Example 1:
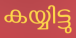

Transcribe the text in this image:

കയ്യിട്ടു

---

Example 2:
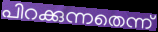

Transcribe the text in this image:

പിറക്കുന്നതെന്ന്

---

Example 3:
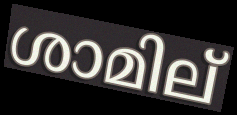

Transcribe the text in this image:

ശാമില്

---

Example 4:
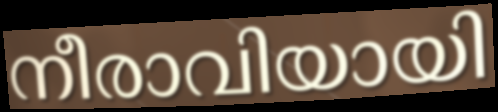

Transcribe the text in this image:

നീരാവിയായി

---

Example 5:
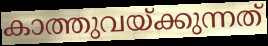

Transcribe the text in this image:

കാത്തുവയ്ക്കുന്നത്